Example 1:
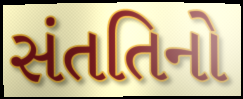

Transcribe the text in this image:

સંતતિનો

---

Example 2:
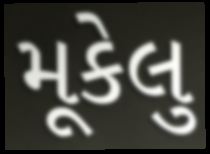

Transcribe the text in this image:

મૂકેલુ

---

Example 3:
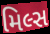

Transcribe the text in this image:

મિલ્સ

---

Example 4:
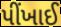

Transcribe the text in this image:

પીંખાઈ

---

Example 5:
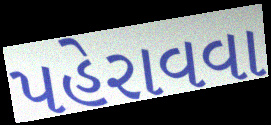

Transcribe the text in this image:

પહેરાવવા